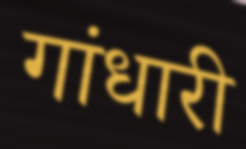
गांधारी